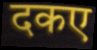
दकए